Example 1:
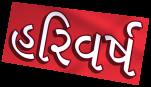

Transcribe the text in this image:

હરિવર્ષ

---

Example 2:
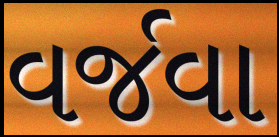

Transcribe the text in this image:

વર્જવા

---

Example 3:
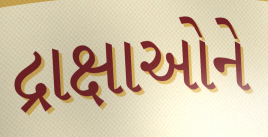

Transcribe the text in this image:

દ્રાક્ષાઓને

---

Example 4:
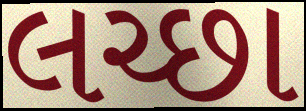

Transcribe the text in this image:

લચ્છા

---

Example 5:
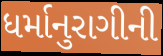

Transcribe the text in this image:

ધર્માનુરાગીની